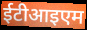
ईटीआइएम